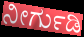
ನೀರ್ಗುಡಿ